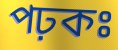
পঢ়কঃ